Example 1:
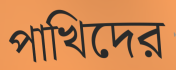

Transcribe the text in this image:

পাখিদের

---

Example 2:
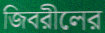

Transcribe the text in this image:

জিবরীলের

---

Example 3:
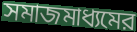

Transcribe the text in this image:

সমাজমাধ্যমের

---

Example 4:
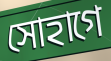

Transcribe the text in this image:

সোহাগে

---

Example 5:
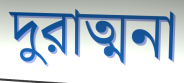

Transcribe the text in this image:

দুরাত্মনা